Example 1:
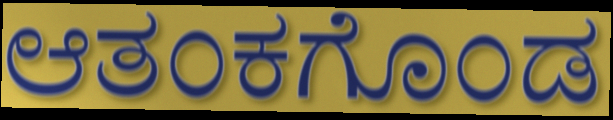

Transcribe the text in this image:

ಆತಂಕಗೊಂಡ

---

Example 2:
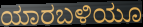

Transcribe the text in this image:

ಯಾರಬಳಿಯೂ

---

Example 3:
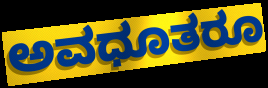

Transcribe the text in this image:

ಅವಧೂತರೂ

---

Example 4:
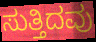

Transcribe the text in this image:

ಸುತ್ತಿದವು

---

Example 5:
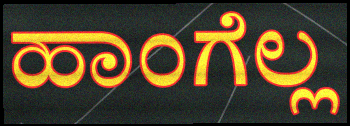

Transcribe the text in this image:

ಹಾಂಗೆಲ್ಲ